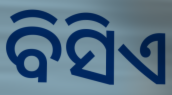
ବିସିଏ